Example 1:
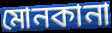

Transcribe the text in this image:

মোনকানা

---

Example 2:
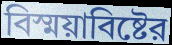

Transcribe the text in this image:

বিস্ময়াবিষ্টের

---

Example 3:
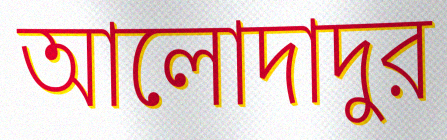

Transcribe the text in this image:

আলোদাদুর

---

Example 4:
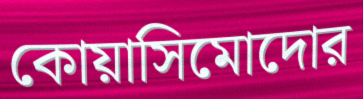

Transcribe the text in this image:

কোয়াসিমোদোর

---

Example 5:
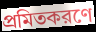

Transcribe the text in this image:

প্রমিতকরণে